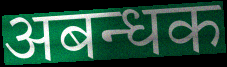
अबन्धक